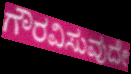
ಗೌರವಿಸುವುದೇ